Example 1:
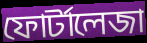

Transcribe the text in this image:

ফোর্টালেজা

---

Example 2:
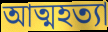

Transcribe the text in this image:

আত্মহত্যা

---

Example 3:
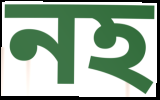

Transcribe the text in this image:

নহ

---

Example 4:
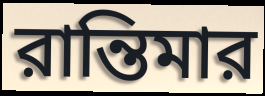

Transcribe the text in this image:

রান্তিমার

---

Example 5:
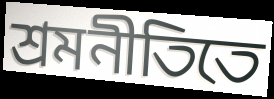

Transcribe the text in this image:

শ্রমনীতিতে